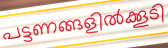
പട്ടണങ്ങളിൽക്കൂടി